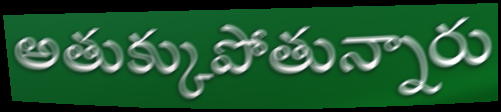
అతుక్కుపోతున్నారు